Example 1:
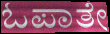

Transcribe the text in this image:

ಓಪಾತೇ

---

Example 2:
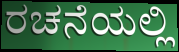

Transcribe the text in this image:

ರಚನೆಯಲ್ಲಿ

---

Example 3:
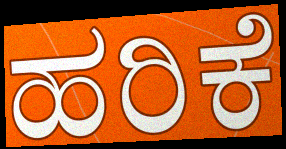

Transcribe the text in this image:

ಹರಿಕೆ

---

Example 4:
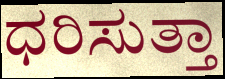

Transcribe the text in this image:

ಧರಿಸುತ್ತಾ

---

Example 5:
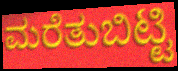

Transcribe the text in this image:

ಮರೆತುಬಿಟ್ಟಿ